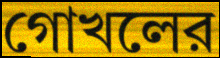
গোখলের